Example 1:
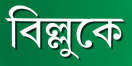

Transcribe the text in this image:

বিল্লুকে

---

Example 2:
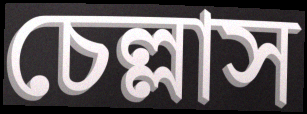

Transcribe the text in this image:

চেল্লাস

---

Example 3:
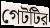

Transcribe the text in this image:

গেটটির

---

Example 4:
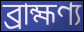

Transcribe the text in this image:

ব্রাহ্মণ্য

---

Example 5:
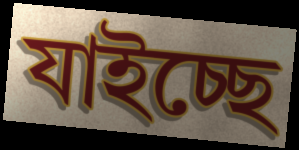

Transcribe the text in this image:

যাইচ্ছে